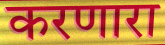
करणारा